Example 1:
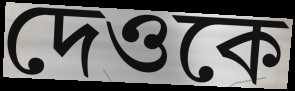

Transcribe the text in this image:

দেওকে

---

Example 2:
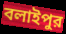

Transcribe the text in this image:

বলাইপুর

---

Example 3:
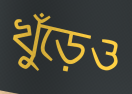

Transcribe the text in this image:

খুঁড়েও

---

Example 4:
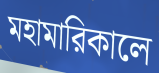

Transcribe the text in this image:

মহামারিকালে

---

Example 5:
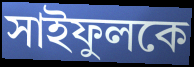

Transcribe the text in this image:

সাইফুলকে